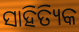
ସାହିତ୍ୟିକ